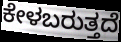
ಕೇಳಬರುತ್ತದೆ